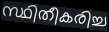
സ്ഥിതീകരിച്ച